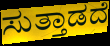
ಸುತ್ತಾಡದೆ